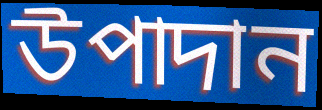
উপাদান